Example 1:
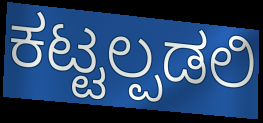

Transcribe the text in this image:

ಕಟ್ಟಲ್ಪಡಲಿ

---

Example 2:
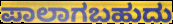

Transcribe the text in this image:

ಪಾಲಾಗಬಹುದು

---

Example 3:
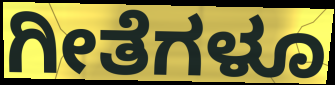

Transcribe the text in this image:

ಗೀತೆಗಳೂ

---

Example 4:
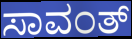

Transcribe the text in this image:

ಸಾವಂತ್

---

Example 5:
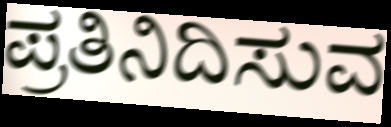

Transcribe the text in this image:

ಪ್ರತಿನಿದಿಸುವ